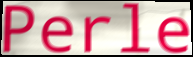
Perle